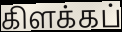
கிளக்கப்